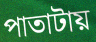
পাতাটায়